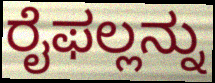
ರೈಫಲ್ಲನ್ನು